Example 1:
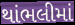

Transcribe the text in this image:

થાંભલીમાં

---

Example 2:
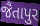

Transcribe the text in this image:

જૈતાપુર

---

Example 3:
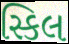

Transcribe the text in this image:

સ્કિલ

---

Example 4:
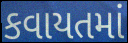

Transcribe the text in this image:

કવાયતમાં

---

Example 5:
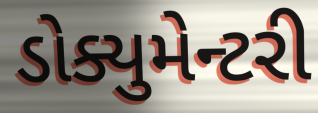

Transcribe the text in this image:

ડોક્યુમેન્ટરી